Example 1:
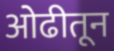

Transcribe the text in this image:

ओढीतून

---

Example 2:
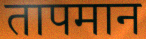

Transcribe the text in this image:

तापमान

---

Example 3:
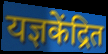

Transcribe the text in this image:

यज्ञकेंद्रित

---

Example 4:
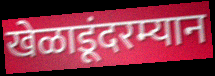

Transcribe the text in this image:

खेळाडूंदरम्यान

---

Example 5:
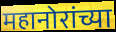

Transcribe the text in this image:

महानोरांच्या